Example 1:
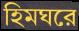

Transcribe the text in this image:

হিমঘরে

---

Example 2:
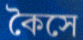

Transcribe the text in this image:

কৈসে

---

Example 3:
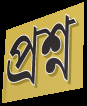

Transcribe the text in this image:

প্রশ্ন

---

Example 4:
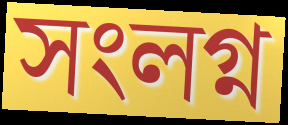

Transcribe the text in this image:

সংলগ্ন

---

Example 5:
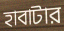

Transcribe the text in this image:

হাবাটার